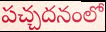
పచ్చదనంలో